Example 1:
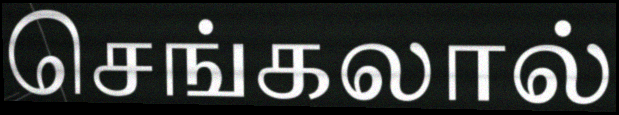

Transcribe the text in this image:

செங்கலால்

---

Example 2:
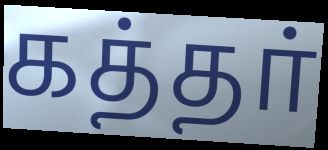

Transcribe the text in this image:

கத்தர்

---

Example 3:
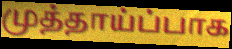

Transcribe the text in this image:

முத்தாய்ப்பாக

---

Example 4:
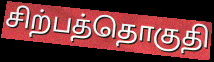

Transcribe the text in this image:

சிற்பத்தொகுதி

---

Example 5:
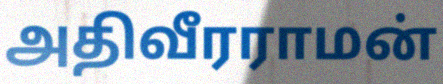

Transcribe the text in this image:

அதிவீரராமன்